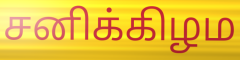
சனிக்கிழம